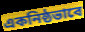
একনিষ্ঠভাবে